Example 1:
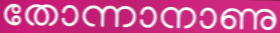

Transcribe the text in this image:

തോന്നാനാണു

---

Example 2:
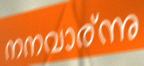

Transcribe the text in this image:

നനവാര്ന്നു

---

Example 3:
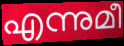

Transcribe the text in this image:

എന്നുമീ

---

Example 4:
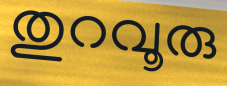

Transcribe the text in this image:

തുറവൂരു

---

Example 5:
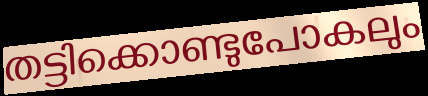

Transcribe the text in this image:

തട്ടിക്കൊണ്ടുപോകലും